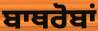
ਬਾਥਰੋਬਾਂ